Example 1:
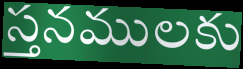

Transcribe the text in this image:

స్తనములకు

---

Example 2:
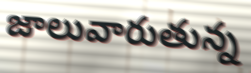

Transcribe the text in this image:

జాలువారుతున్న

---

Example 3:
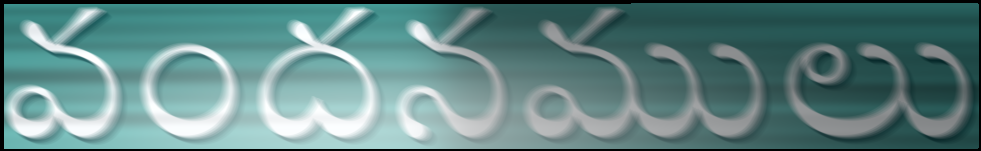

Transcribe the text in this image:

వందనములు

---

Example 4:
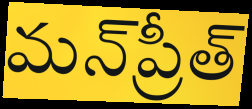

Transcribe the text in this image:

మన్‌ప్రీత్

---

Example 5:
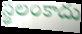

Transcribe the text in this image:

స్థలంకాదు